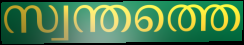
സ്വന്തത്തെ